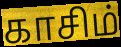
காசிம்